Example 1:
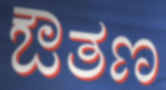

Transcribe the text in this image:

ಔತಣ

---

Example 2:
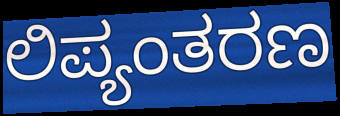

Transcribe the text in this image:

ಲಿಪ್ಯಂತರಣ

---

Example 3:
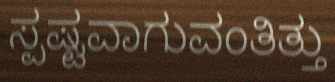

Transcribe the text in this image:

ಸ್ಪಷ್ಟವಾಗುವಂತಿತ್ತು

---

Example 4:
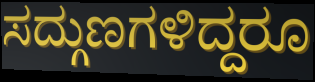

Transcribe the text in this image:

ಸದ್ಗುಣಗಳಿದ್ದರೂ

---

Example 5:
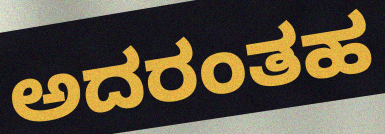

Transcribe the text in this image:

ಅದರಂತಹ